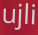
ujli